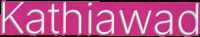
Kathiawad